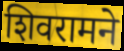
शिवरामने